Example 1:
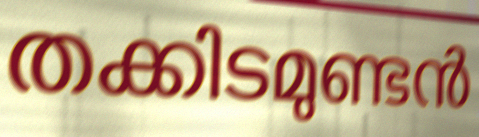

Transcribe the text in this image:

തക്കിടമുണ്ടൻ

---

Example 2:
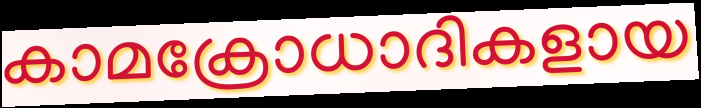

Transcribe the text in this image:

കാമക്രോധാദികളായ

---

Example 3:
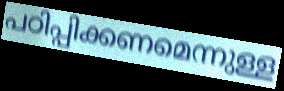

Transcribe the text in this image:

പഠിപ്പിക്കണമെന്നുള്ള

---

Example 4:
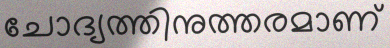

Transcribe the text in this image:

ചോദ്യത്തിനുത്തരമാണ്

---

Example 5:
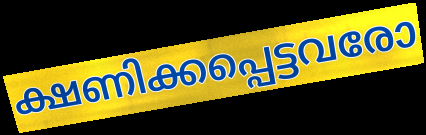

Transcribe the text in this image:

ക്ഷണിക്കപ്പെട്ടവരോ